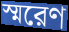
স্মরেণ